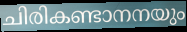
ചിരികണ്ടാനനയും